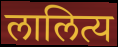
लालित्य